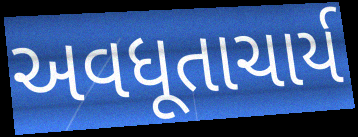
અવધૂતાચાર્ય